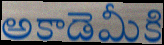
అకాడెమీకి